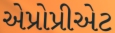
એપ્રોપ્રીએટ